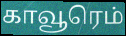
காவூரெம்